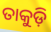
ତାକୁଡ଼ି